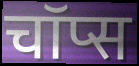
चॉप्स